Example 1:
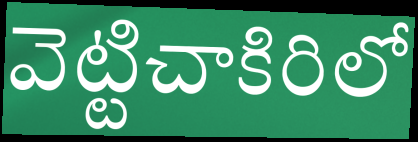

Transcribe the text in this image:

వెట్టిచాకిరిలో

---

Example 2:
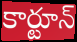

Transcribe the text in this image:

కార్టూన్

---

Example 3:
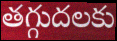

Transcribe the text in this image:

తగ్గుదలకు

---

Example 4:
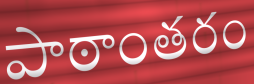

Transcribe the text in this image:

పాఠాంతరం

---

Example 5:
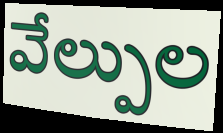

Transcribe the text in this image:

వేల్పుల